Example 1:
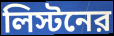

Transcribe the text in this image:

লিস্টনের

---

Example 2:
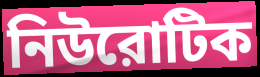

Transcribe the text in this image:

নিউরোটিক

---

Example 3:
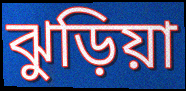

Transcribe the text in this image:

ঝুড়িয়া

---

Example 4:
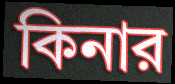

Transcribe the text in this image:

কিনার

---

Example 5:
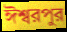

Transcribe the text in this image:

ঈশ্বরপুর